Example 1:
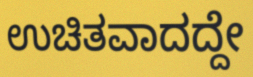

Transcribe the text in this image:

ಉಚಿತವಾದದ್ದೇ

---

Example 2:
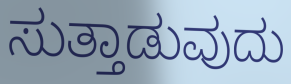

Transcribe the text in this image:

ಸುತ್ತಾಡುವುದು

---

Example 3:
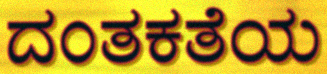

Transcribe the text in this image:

ದಂತಕತೆಯ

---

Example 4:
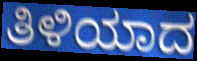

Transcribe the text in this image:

ತಿಳಿಯಾದ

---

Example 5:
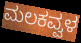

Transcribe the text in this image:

ಮಲಕವ್ವಳ